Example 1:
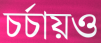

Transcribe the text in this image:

চর্চায়ও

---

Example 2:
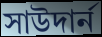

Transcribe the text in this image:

সাউদার্ন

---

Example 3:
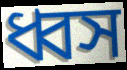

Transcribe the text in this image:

ধ্বস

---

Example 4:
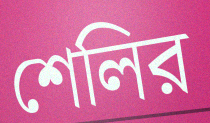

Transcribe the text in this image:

শেলির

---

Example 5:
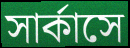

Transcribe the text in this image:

সার্কাসে